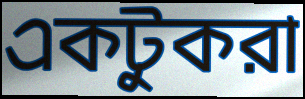
একটুকরা